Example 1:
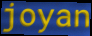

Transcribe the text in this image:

joyan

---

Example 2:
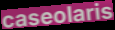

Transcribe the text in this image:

caseolaris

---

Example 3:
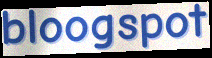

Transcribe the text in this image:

bloogspot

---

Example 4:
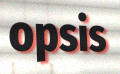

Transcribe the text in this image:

opsis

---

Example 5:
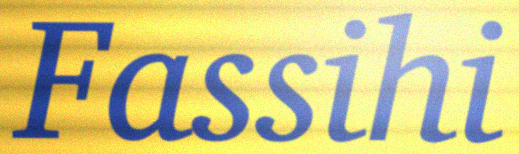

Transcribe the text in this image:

Fassihi